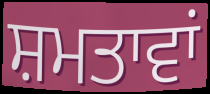
ਸ਼ਮਤਾਵਾਂ